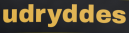
udryddes